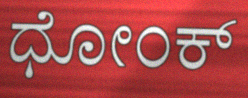
ಧೋಂಕ್